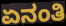
ಏನಂತಿ